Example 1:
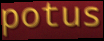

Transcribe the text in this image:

potus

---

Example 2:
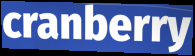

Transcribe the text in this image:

cranberry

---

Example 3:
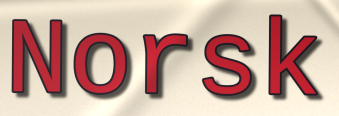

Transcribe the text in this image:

Norsk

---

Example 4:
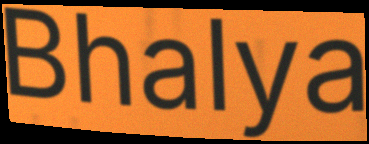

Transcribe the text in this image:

Bhalya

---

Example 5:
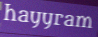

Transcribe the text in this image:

hayyram